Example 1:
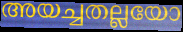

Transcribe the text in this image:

അയച്ചതല്ലയോ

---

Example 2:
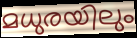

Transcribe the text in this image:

മധുരയിലും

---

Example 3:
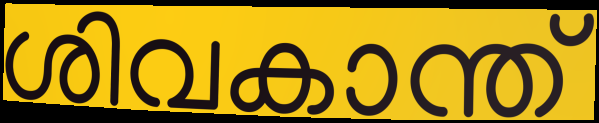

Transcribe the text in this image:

ശിവകാന്ത്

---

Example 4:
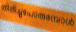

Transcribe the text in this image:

തിരിച്ചുപോരുമ്പോൾ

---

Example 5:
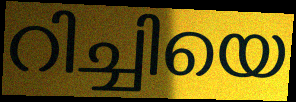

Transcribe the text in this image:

റിച്ചിയെ